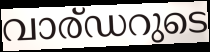
വാര്ഡറുടെ